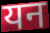
यन